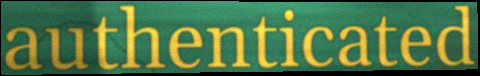
authenticated